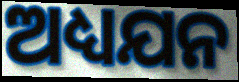
ଅଧ୍ୟଯନ